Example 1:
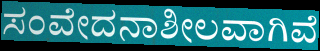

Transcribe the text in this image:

ಸಂವೇದನಾಶೀಲವಾಗಿವೆ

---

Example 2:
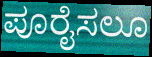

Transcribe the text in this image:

ಪೂರೈಸಲೂ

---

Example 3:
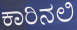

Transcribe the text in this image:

ಕಾರಿನಲಿ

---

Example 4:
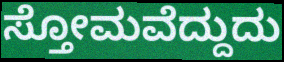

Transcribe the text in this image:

ಸ್ತೋಮವೆದ್ದುದು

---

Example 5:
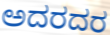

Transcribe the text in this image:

ಅದರದರ